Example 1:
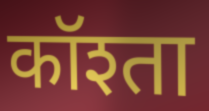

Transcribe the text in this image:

कॉश्ता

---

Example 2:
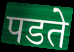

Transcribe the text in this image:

पडते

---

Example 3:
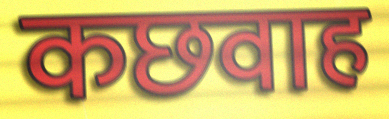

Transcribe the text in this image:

कछवाह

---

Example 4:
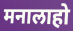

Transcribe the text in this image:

मनालाहो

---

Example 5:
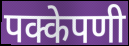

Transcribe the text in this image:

पक्केपणी